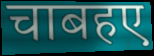
चाबहए